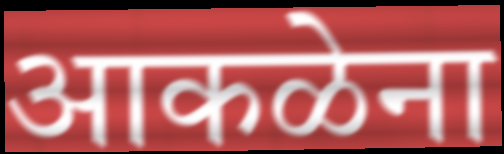
आकळेना